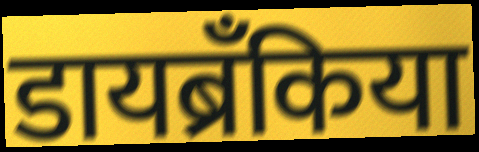
डायब्रँकिया